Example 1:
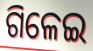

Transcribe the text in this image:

ଗିଳେଇ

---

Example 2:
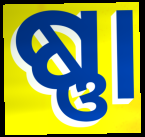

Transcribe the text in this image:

ଷ୍ଣା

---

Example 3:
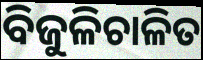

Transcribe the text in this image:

ବିଜୁଳିଚାଳିତ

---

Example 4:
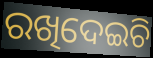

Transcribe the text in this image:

ରଖିଦେଇଚି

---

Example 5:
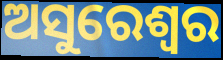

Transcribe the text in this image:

ଅସୁରେଶ୍ଵର